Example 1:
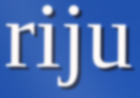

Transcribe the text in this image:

riju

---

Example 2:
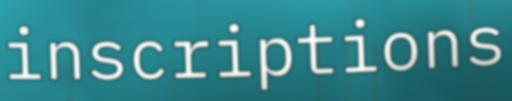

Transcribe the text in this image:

inscriptions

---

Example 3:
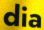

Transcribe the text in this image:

dia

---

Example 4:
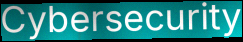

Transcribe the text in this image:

Cybersecurity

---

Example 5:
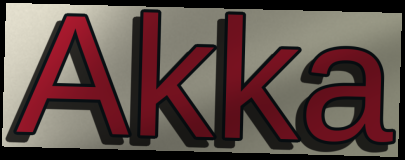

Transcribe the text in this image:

Akka